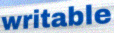
writable